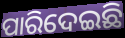
ପାରିଦେଇଛି